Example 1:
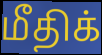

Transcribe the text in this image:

மீதிக்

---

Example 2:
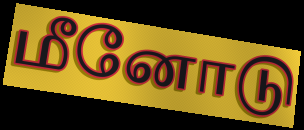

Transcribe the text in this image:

மீனோடு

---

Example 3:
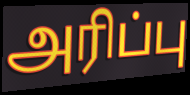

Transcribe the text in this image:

அரிப்பு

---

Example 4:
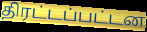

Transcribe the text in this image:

திரட்டப்பட்டன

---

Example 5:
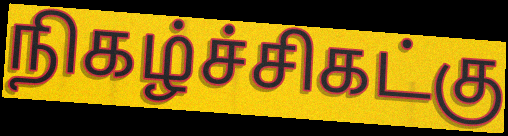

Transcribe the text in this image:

நிகழ்ச்சிகட்கு